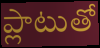
ప్లాటుతో